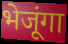
भेजूंगा